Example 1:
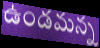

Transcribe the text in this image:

ఉండమన్న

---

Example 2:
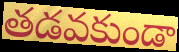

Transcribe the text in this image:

తడవకుండా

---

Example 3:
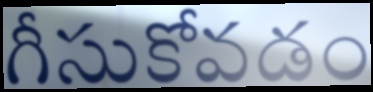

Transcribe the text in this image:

గీసుకోవడం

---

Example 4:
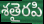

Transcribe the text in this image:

శతైరపి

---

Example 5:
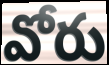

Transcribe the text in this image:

వోరు